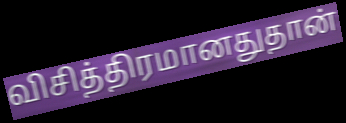
விசித்திரமானதுதான்